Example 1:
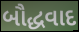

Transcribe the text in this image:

બૌદ્ધવાદ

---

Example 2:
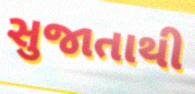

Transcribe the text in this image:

સુજાતાથી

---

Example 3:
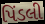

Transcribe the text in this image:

પિંડલી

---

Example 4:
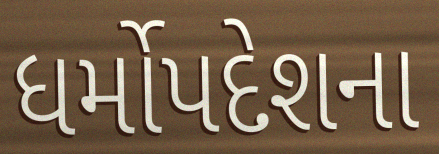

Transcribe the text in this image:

ધર્મોપદેશના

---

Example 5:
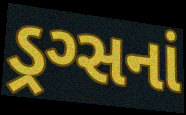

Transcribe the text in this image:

ડ્રગ્સનાં